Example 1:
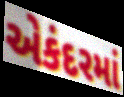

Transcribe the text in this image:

એકંદરમાં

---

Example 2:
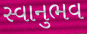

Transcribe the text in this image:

સ્વાનુભવ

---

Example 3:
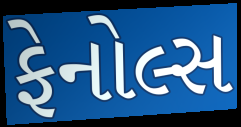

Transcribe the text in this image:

ફેનોલ્સ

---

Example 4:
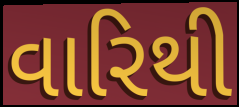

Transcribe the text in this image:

વારિથી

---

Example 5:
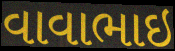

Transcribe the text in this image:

વાવાભાઇ